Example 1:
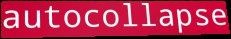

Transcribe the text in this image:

autocollapse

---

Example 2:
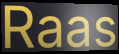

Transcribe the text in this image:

Raas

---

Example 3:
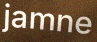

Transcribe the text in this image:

jamne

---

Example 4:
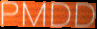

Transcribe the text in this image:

PMDD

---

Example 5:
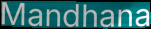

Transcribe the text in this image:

Mandhana